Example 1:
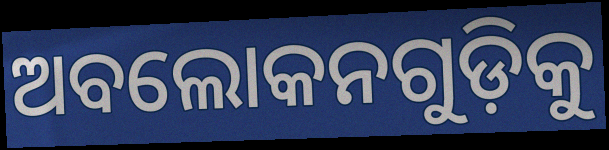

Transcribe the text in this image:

ଅବଲୋକନଗୁଡ଼ିକୁ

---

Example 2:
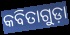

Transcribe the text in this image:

କବିତାଗୁଡ଼ା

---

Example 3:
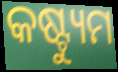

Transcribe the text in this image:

କଷ୍ଟ୍ୟୁମ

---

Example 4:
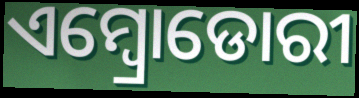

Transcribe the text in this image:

ଏମ୍ବ୍ରୋଡୋରୀ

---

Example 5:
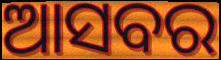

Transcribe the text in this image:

ଆସବର